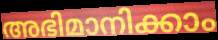
അഭിമാനിക്കാം